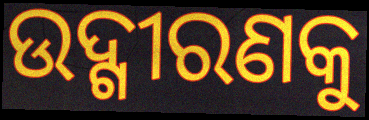
ଉଦ୍ଗୀରଣକୁ